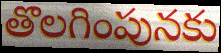
తొలగింపునకు